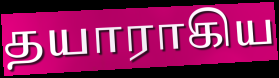
தயாராகிய